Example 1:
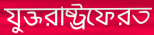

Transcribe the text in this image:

যুক্তরাষ্ট্রফেরত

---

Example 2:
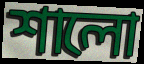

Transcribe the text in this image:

শালো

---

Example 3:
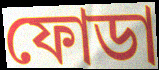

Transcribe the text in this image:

ফোডা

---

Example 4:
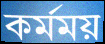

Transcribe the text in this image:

কর্মময়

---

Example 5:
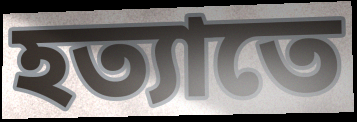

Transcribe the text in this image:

হত্যাতে